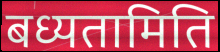
बध्यतामिति